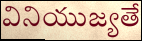
వినియుజ్యతే